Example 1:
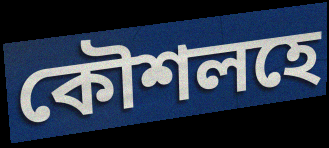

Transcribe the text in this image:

কৌশলহে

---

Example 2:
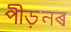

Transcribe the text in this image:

পীড়নৰ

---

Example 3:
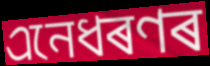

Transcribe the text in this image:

এনেধৰণৰ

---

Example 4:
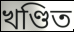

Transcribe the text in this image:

খণ্ডিত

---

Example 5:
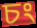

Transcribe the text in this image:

চং